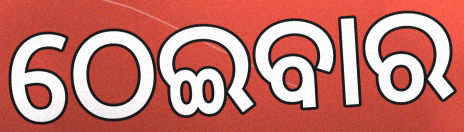
ଠେଇବାର